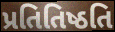
પ્રતિતિષ્ઠતિ